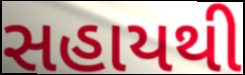
સહાયથી